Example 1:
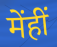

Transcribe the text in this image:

मेंहीं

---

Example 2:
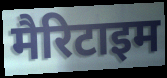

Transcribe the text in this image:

मैरिटाइम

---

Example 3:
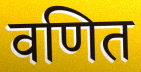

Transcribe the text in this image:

वणित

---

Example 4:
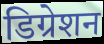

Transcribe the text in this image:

डिग्रेशन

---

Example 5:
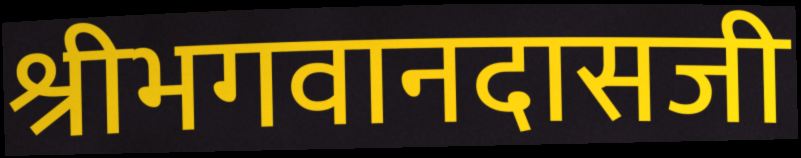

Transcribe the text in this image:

श्रीभगवानदासजी